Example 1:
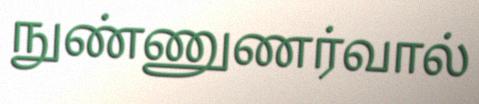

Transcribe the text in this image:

நுண்ணுணர்வால்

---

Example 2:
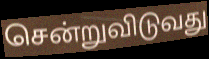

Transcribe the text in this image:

சென்றுவிடுவது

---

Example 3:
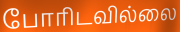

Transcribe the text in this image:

போரிடவில்லை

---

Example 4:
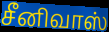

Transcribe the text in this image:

சீனிவாஸ்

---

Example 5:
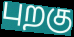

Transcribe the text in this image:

புறகு